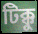
টিক্কু